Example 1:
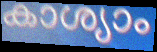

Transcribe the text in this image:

കാശ്യാം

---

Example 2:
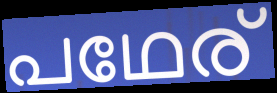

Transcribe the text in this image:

പഥേര്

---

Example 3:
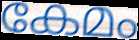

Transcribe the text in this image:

കേമം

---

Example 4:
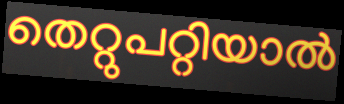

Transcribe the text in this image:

തെറ്റുപറ്റിയാൽ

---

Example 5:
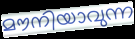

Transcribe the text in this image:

മൗനിയാവുന്ന